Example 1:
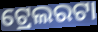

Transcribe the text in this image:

ଟ୍ରେଲରଟା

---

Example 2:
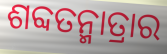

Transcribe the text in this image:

ଶବ୍ଦତନ୍ମାତ୍ରାର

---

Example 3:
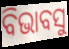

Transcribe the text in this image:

ବିଭାବସୁ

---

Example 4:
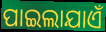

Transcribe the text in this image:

ପାଇଲାଯାଏଁ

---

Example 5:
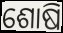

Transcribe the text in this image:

ଶୋଷି